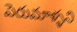
పెరుమాళ్ళని